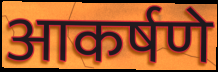
आकर्षणे